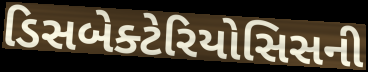
ડિસબેક્ટેરિયોસિસની